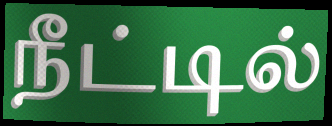
நீட்டில்